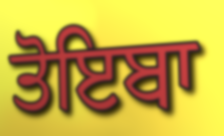
ਤੋਇਬਾ